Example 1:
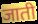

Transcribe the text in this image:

जाती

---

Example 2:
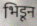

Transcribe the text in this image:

भिडून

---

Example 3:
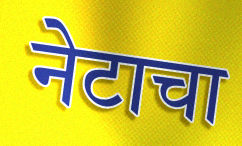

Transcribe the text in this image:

नेटाचा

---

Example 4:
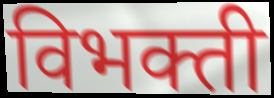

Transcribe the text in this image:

विभक्ती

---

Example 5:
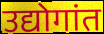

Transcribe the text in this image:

उद्योगांत